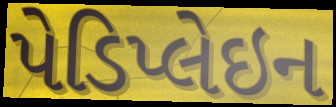
પેડિપ્લેઇન